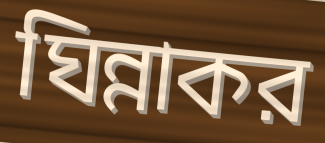
ঘিন্নাকর